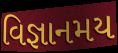
વિજ્ઞાનમય